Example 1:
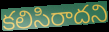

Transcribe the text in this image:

కలిసిరాదని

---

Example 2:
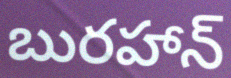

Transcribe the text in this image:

బురహాన్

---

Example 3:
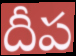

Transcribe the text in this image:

దీప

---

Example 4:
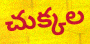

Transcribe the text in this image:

చుక్కల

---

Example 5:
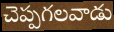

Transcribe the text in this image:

చెప్పగలవాడు